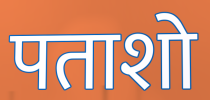
पताशो